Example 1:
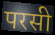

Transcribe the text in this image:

परसी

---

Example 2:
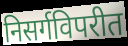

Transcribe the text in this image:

निसर्गविपरीत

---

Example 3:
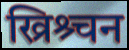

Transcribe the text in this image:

ख्रिश्र्चन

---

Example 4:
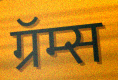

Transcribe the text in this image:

ग्रॅम्स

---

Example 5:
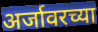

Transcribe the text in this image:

अर्जावरच्या